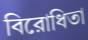
বিরোধিতা